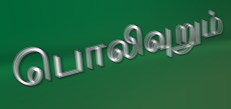
பொலிவுறும்